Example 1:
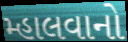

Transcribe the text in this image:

મ્હાલવાનો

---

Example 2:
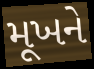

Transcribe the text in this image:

મૂખને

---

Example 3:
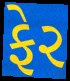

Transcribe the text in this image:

ફેર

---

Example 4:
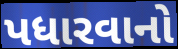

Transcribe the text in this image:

પધારવાનો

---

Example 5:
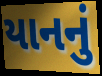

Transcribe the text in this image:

યાનનું